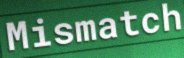
Mismatch